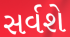
સર્વશે